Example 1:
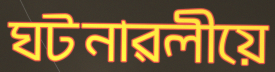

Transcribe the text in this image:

ঘটনাৱলীয়ে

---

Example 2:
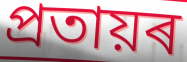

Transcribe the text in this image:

প্ৰতায়ৰ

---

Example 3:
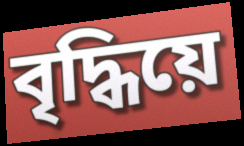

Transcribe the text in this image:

বৃদ্ধিয়ে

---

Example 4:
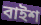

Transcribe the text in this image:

বাইশ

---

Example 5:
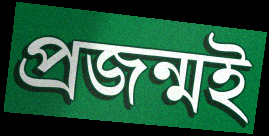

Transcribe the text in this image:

প্ৰজন্মই